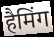
हैमिंग